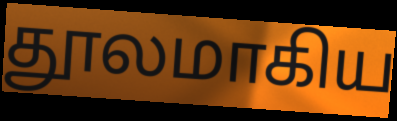
தூலமாகிய